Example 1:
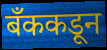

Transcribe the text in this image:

बँककडून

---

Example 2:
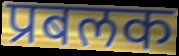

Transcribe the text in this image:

प्रबलक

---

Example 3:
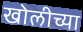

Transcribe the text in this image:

खोलीच्या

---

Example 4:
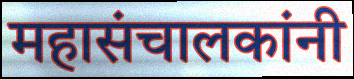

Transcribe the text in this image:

महासंचालकांनी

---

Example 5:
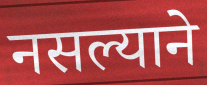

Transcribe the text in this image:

नसल्‍याने